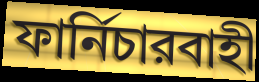
ফার্নিচারবাহী